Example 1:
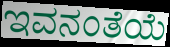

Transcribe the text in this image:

ಇವನಂತೆಯೆ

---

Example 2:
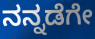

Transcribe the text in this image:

ನನ್ನಡೆಗೇ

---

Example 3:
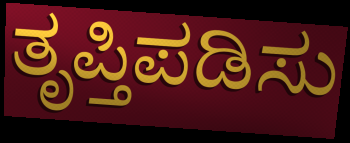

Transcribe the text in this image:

ತೃಪ್ತಿಪಡಿಸು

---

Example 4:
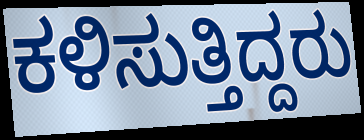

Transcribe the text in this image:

ಕಳಿಸುತ್ತಿದ್ದರು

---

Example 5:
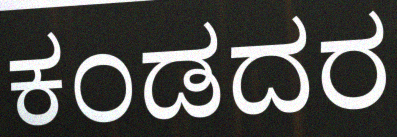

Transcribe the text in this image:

ಕಂಡದರ